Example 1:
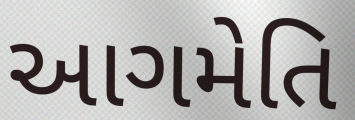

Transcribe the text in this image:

આગમેતિ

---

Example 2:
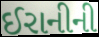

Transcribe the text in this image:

ઈરાનીની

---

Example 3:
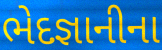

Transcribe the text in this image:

ભેદજ્ઞાનીના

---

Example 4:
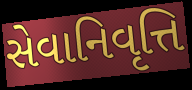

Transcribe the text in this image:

સેવાનિવૃત્તિ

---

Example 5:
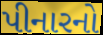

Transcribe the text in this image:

પીનારનો